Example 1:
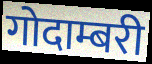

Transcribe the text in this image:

गोदाम्बरी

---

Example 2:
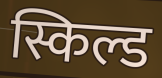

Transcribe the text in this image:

स्किल्ड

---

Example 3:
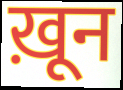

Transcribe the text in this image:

ख़ून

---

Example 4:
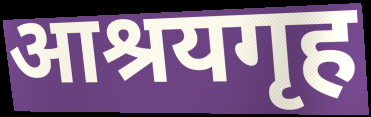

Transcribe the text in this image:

आश्रयगृह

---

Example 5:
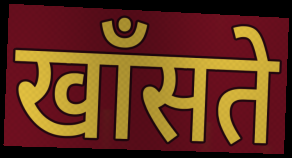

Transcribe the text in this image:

खाँसते